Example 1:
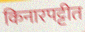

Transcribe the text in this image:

किनारपट्टीत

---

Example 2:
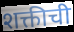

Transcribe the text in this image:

शक्तीची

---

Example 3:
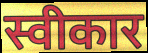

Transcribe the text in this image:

स्वीकार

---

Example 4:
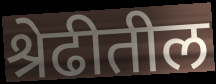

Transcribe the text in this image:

श्रेढीतील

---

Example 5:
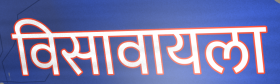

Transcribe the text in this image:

विसावायला